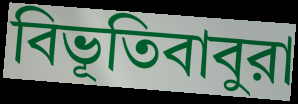
বিভূতিবাবুরা